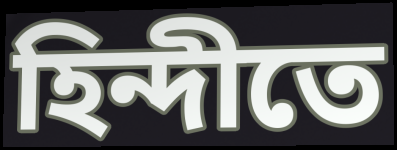
হিন্দীতে